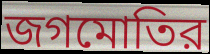
জগমোতির